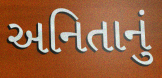
અનિતાનું